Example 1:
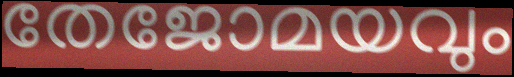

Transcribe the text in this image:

തേജോമയവും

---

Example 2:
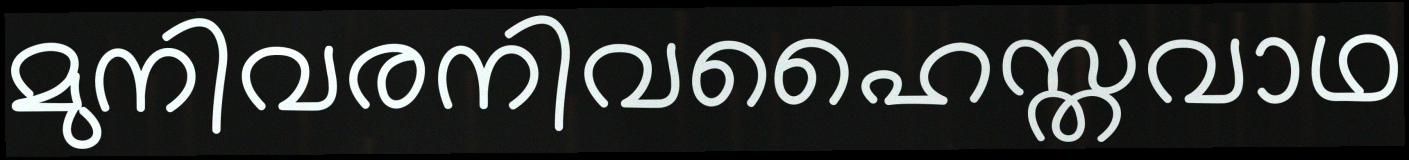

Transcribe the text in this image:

മുനിവരനിവഹൈസ്തവാഥ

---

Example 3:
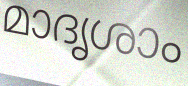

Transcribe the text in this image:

മാദൃശാം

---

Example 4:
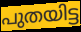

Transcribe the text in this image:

പുതയിട്ട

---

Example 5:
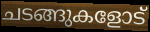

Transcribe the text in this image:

ചടങ്ങുകളോട്